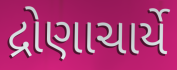
દ્રોણાચાર્યે